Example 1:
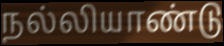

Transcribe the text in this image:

நல்லியாண்டு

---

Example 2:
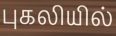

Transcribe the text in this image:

புகலியில்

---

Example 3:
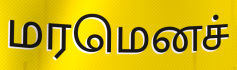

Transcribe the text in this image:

மரமெனச்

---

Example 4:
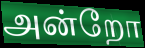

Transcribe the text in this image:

அன்றோ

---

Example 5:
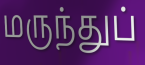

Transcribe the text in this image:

மருந்துப்